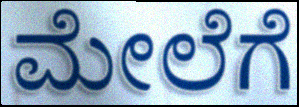
ಮೇಲೆಗೆ